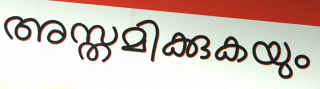
അസ്തമിക്കുകയും